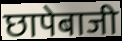
छापेबाजी